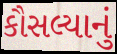
કૌસલ્યાનું